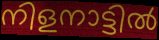
നിളനാട്ടിൽ